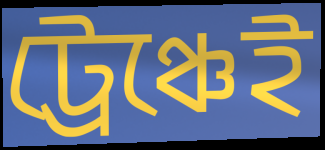
ট্রেঞ্চেই